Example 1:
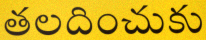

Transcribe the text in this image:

తలదించుకు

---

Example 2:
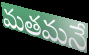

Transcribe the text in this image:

మతమనే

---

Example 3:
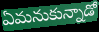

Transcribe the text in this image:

ఏమనుకున్నాడో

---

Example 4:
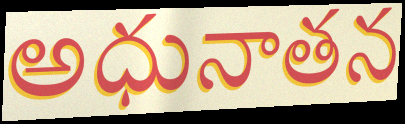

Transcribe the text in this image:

అధునాతన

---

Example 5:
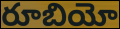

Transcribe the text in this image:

రూబియో